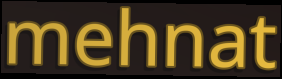
mehnat